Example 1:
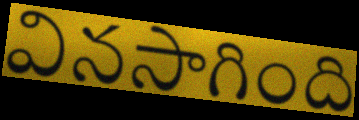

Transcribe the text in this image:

వినసాగింది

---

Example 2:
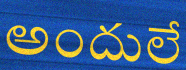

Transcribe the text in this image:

అందులే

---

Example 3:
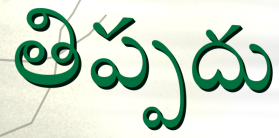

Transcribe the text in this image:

తిప్పదు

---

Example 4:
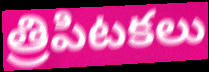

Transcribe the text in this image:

త్రిపిటకలు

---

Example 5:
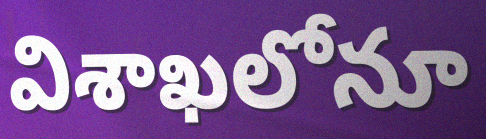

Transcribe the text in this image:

విశాఖలోనూ